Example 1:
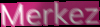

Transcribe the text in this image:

Merkez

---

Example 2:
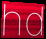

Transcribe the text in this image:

hd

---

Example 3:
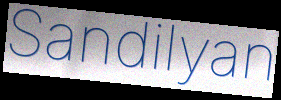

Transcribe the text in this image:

Sandilyan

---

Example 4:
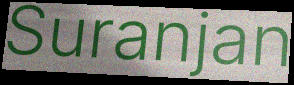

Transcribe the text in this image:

Suranjan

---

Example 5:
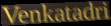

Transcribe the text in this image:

Venkatadri